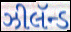
ઝીલૅન્ડ